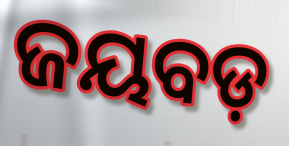
ଜୟବଡ଼